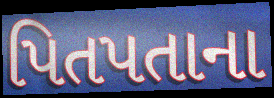
પિતપતાના